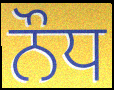
ਨੌਧ